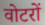
वोटरों